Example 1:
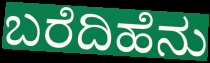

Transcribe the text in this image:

ಬರೆದಿಹೆನು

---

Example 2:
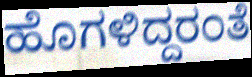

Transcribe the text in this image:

ಹೊಗಳಿದ್ದರಂತೆ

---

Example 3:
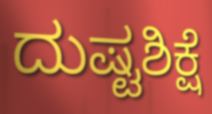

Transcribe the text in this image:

ದುಷ್ಟಶಿಕ್ಷೆ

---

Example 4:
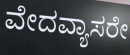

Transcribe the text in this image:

ವೇದವ್ಯಾಸರೇ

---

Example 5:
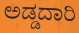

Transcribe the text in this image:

ಅಡ್ಡದಾರಿ